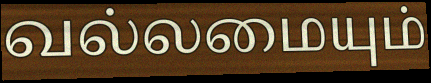
வல்லமையும்